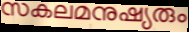
സകലമനുഷ്യരും